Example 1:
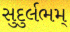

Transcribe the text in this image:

સુદુર્લભમ્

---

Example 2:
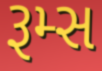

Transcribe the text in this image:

રૂમ્સ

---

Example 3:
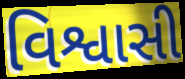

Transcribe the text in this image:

વિશ્વાસી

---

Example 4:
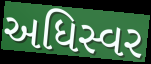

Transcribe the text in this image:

અધિસ્વર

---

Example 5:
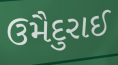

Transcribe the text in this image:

ઉમૈદુરાઈ